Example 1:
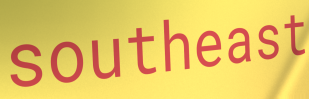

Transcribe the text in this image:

southeast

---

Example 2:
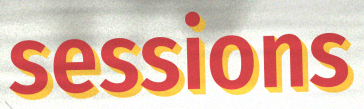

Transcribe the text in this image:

sessions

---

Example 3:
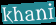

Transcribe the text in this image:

khani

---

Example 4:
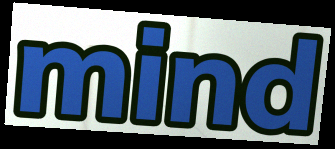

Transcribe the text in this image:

mind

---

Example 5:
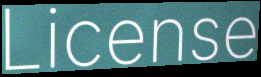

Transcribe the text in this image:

License